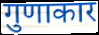
गुणाकार